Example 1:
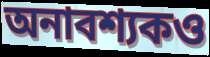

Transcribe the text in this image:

অনাবশ্যকও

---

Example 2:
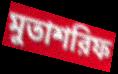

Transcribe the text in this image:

মুতাশরিফ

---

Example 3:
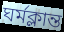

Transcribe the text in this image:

ঘর্মক্লান্ত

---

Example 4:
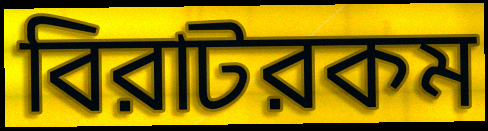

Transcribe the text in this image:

বিরাটরকম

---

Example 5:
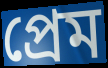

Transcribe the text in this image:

প্রেম